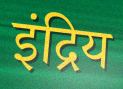
इंद्रिय